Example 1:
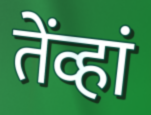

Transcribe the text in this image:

तेंव्हां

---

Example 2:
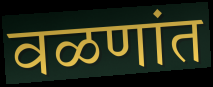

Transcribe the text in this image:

वळणांत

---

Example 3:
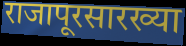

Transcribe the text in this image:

राजापूरसारख्या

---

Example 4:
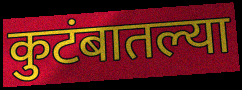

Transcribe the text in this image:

कुटंबातल्या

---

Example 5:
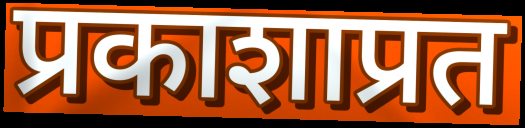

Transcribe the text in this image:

प्रकाशाप्रत